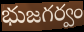
భుజగర్వం